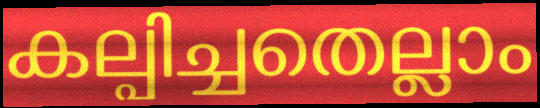
കല്പിച്ചതെല്ലാം